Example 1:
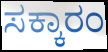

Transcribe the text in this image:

ಸಕ್ಕಾರಂ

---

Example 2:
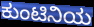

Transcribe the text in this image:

ಕುಂಟಿನಿಯ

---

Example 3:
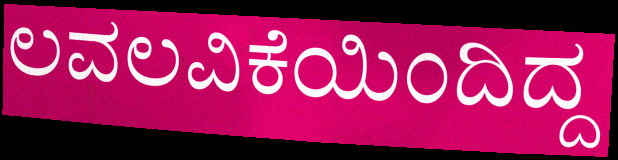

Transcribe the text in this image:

ಲವಲವಿಕೆಯಿಂದಿದ್ದ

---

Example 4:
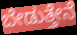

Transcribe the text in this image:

ಬೇಡುತ್ತೇನೆ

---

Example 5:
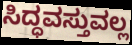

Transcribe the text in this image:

ಸಿದ್ಧವಸ್ತುವಲ್ಲ